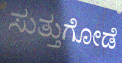
ಸುತ್ತುಗೋಡೆ